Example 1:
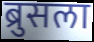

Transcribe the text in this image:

ब्रुसला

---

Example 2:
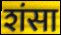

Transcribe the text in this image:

शंसा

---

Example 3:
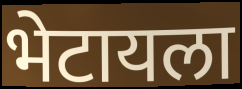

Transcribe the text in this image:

भेटायला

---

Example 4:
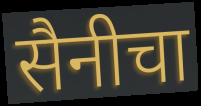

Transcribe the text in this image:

सैनीचा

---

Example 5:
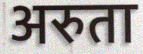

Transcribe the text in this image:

अरुता